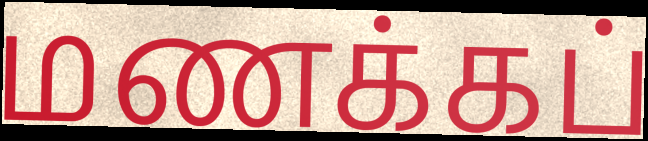
மணக்கப்